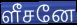
ளீசனே